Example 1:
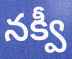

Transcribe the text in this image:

నక్వీ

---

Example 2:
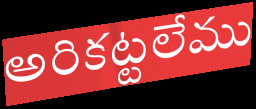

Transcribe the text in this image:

అరికట్టలేము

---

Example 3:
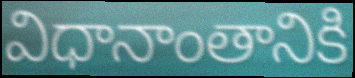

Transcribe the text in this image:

విధానాంతానికి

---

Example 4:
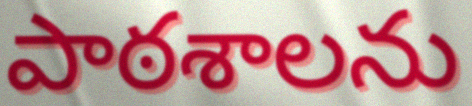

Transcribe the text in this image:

పాఠశాలను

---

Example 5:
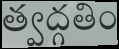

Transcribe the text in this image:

త్వద్గతిం